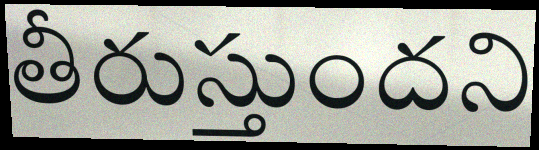
తీరుస్తుందని